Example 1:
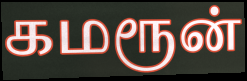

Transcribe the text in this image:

கமரூன்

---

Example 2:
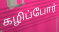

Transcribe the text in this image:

கழிப்போர்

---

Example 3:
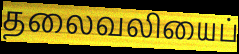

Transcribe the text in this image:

தலைவலியைப்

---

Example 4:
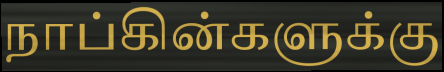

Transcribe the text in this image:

நாப்கின்களுக்கு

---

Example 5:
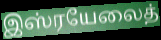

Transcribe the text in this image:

இஸ்ரயேலைத்